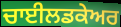
ਚਾਈਲਡਕੇਅਰ